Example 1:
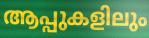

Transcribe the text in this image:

ആപ്പുകളിലും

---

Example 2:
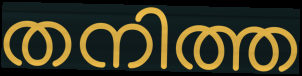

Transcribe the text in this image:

തനിത്ത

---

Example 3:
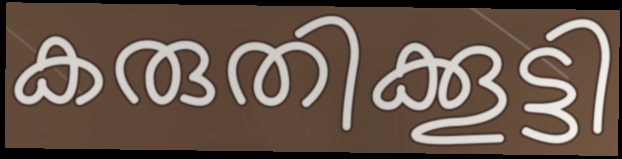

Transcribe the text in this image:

കരുതിക്കൂട്ടി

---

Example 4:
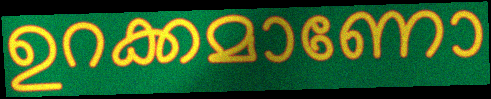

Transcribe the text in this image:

ഉറക്കമാണോ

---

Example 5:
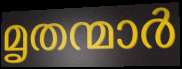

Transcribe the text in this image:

മൃതന്മാർ